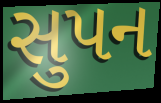
સુપન